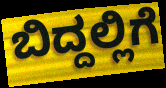
ಬಿದ್ದಲ್ಲಿಗೆ